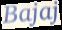
Bajaj